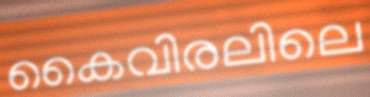
കൈവിരലിലെ